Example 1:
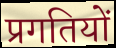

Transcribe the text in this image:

प्रगतियों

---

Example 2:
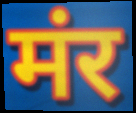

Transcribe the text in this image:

मंर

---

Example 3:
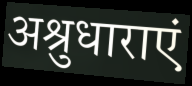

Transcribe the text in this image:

अश्रुधाराएं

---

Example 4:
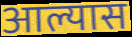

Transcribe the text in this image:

आल्यास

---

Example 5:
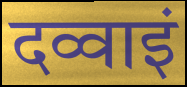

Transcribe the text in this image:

दव्वाइं